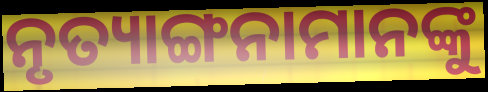
ନୃତ୍ୟାଙ୍ଗନାମାନଙ୍କୁ